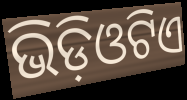
ଭିଡ଼ିଓଟିଏ